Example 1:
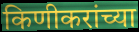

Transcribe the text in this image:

किणीकरांच्या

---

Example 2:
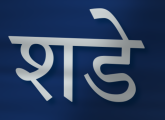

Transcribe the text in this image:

शडे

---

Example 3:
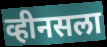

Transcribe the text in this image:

व्हीनसला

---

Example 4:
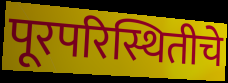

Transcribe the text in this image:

पूरपरिस्थितीचे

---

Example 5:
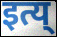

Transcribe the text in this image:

इत्य्